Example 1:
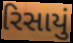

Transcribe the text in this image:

રિસાયું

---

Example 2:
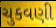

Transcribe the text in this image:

ચુકવણી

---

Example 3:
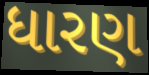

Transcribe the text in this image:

ધારણ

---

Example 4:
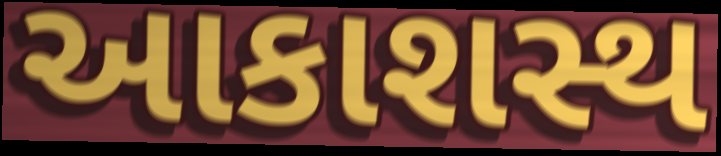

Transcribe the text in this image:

આકાશસ્થ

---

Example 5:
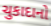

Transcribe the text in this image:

ચુકાદાનો